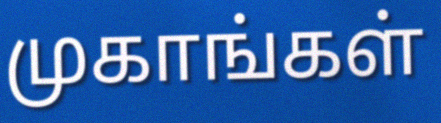
முகாங்கள்